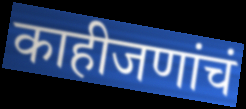
काहीजणांचं